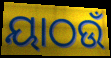
ୟାଠଉଁ